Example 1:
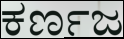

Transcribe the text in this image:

ಕರ್ಣಜ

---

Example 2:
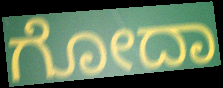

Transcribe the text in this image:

ಗೋದಾ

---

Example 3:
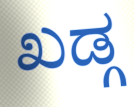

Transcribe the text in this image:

ಖಡ್ಗ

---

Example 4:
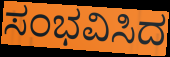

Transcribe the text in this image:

ಸಂಭವಿಸಿದ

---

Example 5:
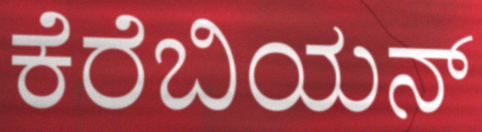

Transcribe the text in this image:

ಕೆರೆಬಿಯನ್